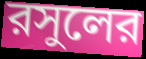
রসুলের